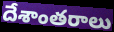
దేశాంతరాలు